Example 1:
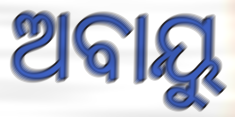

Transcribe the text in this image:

ଅବାୟୁ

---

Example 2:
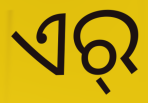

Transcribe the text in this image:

ଏର୍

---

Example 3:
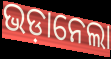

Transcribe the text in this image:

ଭଡ଼ାନେଲା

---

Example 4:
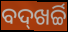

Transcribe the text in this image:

ବଦ୍‌ଖର୍ଚ୍ଚି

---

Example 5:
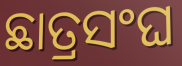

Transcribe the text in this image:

ଛାତ୍ରସଂଘ